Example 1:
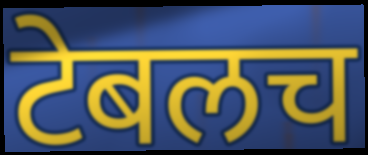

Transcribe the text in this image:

टेबलच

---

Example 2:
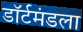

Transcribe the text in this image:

डॉर्टमंडला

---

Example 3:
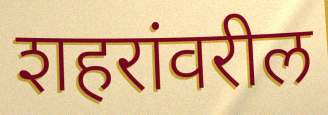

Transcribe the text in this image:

शहरांवरील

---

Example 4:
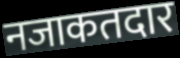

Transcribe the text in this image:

नजाकतदार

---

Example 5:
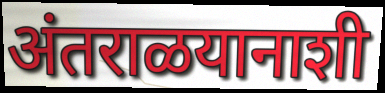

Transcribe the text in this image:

अंतराळयानाशी